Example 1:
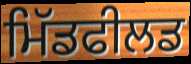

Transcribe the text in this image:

ਮਿੱਡਫੀਲਡ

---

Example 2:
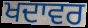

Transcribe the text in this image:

ਖਦਾਵਰ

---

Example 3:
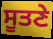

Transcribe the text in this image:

ਸੂਤਣੇ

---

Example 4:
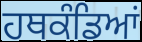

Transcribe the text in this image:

ਹਥਕੰਡਿਆਂ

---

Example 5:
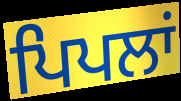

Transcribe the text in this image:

ਪਿਪਲਾਂ